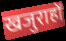
खजुराहों